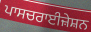
ਪਾਸਚਰਾਈਜ਼ੇਸ਼ਨ